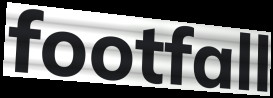
footfall